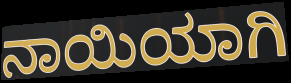
ನಾಯಿಯಾಗಿ